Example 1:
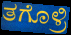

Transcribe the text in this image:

ತಗೊಳ್ರಿ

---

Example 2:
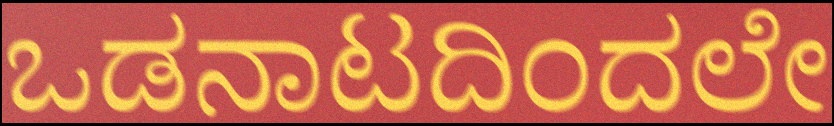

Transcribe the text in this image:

ಒಡನಾಟದಿಂದಲೇ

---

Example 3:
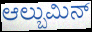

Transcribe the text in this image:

ಆಲ್ಬುಮಿನ್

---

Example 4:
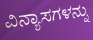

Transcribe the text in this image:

ವಿನ್ಯಾಸಗಳನ್ನು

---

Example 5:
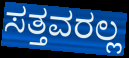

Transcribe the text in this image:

ಸತ್ತವರಲ್ಲ